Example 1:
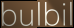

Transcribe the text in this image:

bulbil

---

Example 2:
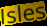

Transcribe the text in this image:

Isles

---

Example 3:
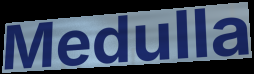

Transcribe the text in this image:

Medulla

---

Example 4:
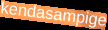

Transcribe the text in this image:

kendasampige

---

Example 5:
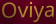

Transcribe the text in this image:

Oviya